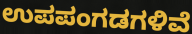
ಉಪಪಂಗಡಗಳಿವೆ